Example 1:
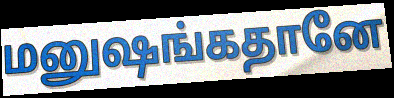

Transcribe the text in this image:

மனுஷங்கதானே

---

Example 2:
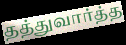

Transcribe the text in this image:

தத்துவார்த்த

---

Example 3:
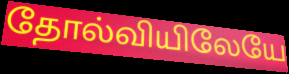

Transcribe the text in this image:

தோல்வியிலேயே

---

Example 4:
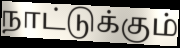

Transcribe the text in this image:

நாட்டுக்கும்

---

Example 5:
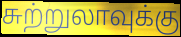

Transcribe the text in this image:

சுற்றுலாவுக்கு